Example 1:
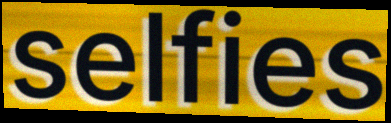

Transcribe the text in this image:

selfies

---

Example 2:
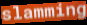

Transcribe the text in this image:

slamming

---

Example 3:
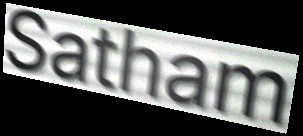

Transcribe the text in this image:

Satham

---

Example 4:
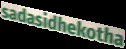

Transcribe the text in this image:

sadasidhekotha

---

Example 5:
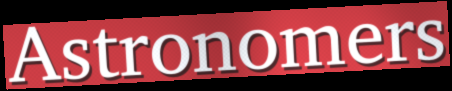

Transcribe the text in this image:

Astronomers